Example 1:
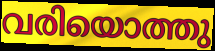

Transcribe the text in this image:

വരിയൊത്തു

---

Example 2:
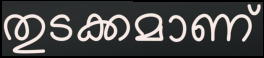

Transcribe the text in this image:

തുടക്കമാണ്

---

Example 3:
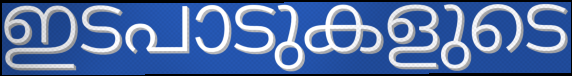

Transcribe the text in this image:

ഇടപാടുകളുടെ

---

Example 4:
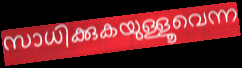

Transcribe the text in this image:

സാധിക്കുകയുള്ളൂവെന്ന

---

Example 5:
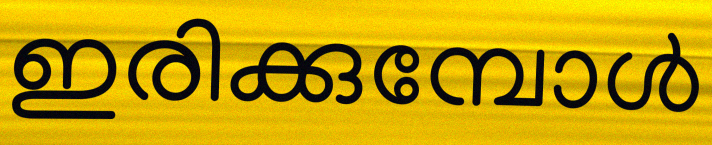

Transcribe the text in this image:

ഇരിക്കുമ്പോൾ